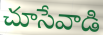
చూసేవాడి